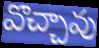
వొచ్చావు